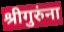
श्रीगुरुंना